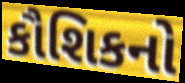
કૌશિકનો